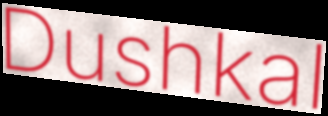
Dushkal